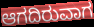
ಆಗದಿರುವಾಗ